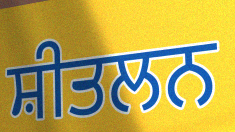
ਸ਼ੀਤਲਨ